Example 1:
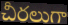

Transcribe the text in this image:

చీరలుగా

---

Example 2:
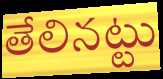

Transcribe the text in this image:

తేలినట్టు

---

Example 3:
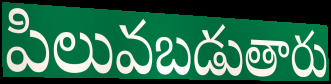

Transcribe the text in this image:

పిలువబడుతారు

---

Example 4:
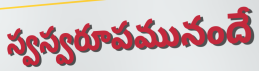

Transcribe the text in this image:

స్వస్వరూపమునందే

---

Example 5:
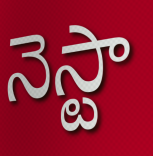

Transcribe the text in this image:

నెస్టా